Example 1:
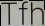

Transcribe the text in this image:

Tfh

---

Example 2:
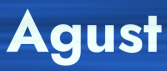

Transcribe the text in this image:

Agust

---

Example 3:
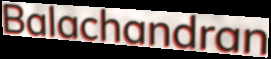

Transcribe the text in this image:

Balachandran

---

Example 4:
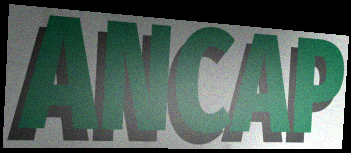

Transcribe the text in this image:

ANCAP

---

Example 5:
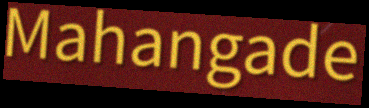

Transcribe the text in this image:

Mahangade